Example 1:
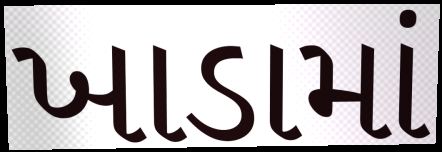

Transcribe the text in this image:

ખાડામાં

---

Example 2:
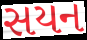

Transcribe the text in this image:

સયન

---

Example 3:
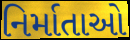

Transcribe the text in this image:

નિર્માતાઓ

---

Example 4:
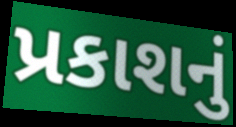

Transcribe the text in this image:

પ્રકાશનું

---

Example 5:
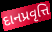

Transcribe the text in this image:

દાનપ્રવૃત્તિ